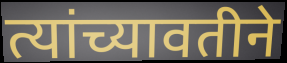
त्यांच्यावतीने